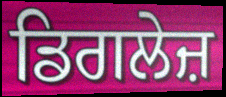
ਡਿਗਲੇਜ਼